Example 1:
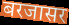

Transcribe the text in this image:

बरजासर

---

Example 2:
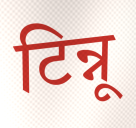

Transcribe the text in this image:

टिन्नू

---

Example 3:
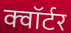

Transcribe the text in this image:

क्‍वॉर्टर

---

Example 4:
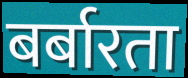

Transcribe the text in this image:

बर्बारता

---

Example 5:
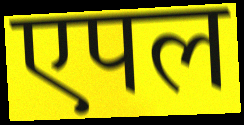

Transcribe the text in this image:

एपल